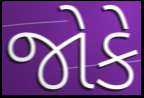
જોકે